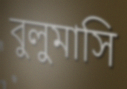
বুলুমাসি